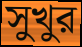
সুখুর